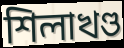
শিলাখণ্ড